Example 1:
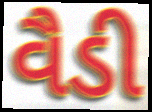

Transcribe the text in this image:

વૈડી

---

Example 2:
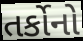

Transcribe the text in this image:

તર્કોનો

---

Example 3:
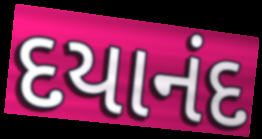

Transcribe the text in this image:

દયાનંદ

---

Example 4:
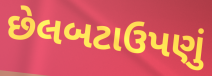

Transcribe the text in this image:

છેલબટાઉપણું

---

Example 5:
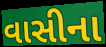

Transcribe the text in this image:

વાસીના